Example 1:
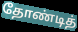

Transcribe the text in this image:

தோண்டித்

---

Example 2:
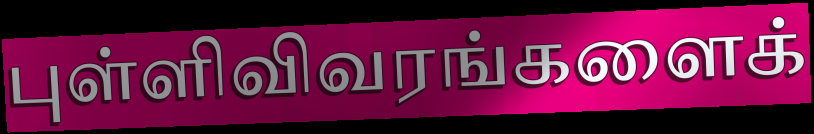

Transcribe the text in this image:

புள்ளிவிவரங்களைக்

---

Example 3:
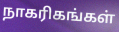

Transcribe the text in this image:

நாகரிகங்கள்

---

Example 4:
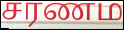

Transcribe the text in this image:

சரணம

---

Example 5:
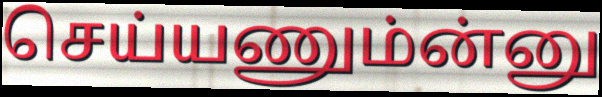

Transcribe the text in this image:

செய்யணும்ன்னு